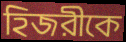
হিজরীকে